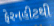
ફેરનહીટથી